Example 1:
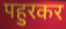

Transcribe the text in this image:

पहुरकर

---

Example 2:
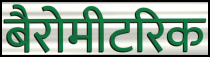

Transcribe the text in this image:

बैरोमीटरिक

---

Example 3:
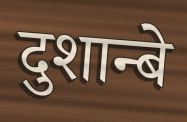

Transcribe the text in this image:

दुशान्बे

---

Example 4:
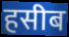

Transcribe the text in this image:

हसीब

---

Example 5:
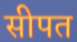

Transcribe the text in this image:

सीपत